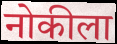
नोकीला